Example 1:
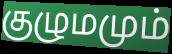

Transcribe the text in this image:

குழுமமும்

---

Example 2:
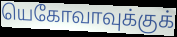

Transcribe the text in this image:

யெகோவாவுக்குக்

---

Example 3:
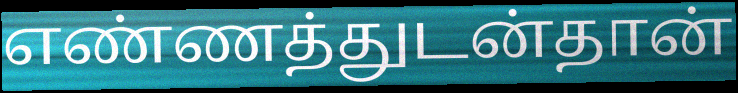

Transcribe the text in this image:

எண்ணத்துடன்தான்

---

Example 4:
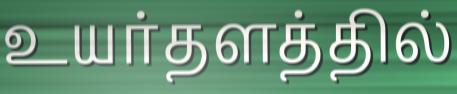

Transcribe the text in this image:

உயர்தளத்தில்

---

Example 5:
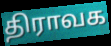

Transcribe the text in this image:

திராவக